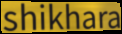
shikhara